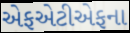
એફએટીએફના